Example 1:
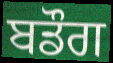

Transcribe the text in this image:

ਬਡੌਗ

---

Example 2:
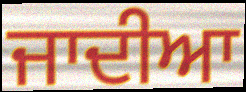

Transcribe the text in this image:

ਜਾਦੀਆ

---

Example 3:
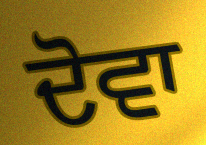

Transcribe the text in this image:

ਦੋਵਾ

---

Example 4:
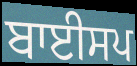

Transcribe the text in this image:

ਬਾਈਸਪ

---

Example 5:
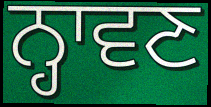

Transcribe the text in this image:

ਨ੍ਹਾਵਣ